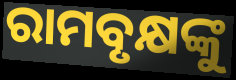
ରାମବୃକ୍ଷଙ୍କୁ